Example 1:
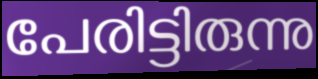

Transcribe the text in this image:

പേരിട്ടിരുന്നു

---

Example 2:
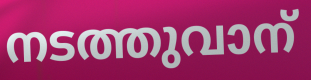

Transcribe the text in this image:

നടത്തുവാന്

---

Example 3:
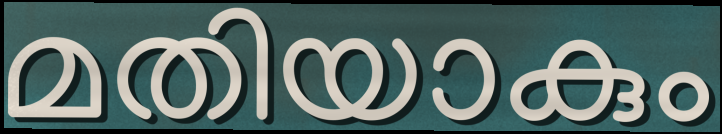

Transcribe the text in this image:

മതിയാകും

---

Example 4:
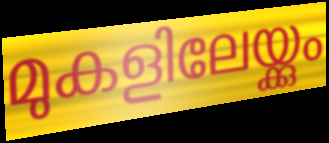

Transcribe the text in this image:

മുകളിലേയ്ക്കും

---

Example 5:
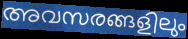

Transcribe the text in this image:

അവസരങ്ങളിലും